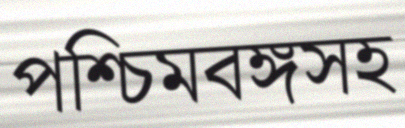
পশ্চিমবঙ্গসহ